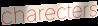
charecters